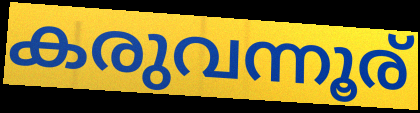
കരുവന്നൂര്